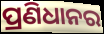
ପ୍ରଣିଧାନର